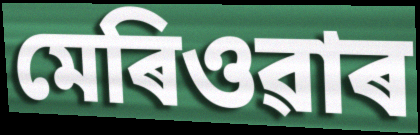
মেৰিওৱাৰ